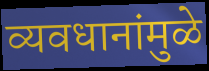
व्यवधानांमुळे